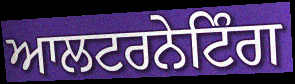
ਆਲਟਰਨੇਟਿੰਗ